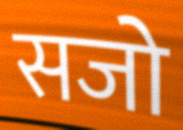
सजो